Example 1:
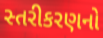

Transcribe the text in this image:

સ્તરીકરણનો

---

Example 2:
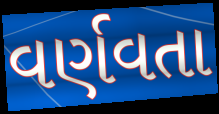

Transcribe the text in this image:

વર્ણવતા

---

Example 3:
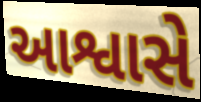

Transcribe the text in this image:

આશ્વાસે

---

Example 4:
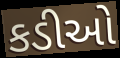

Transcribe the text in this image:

કડીઓ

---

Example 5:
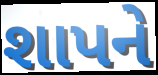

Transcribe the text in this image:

શાપને